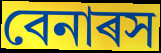
বেনাৰস